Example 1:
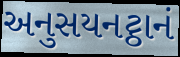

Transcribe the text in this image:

અનુસયનટ્ઠાનં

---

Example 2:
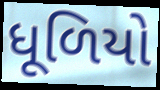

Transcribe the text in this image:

ધૂળિયો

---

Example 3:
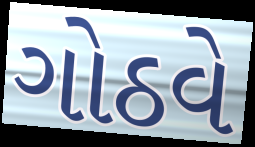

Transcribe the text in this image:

ગોઠવે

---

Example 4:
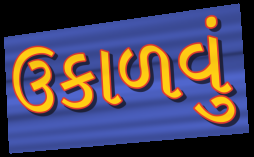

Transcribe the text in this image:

ઉકાળવું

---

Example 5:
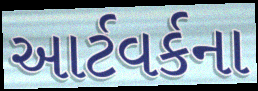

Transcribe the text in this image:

આર્ટવર્કના